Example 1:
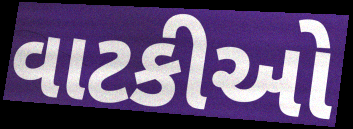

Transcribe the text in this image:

વાટકીઓ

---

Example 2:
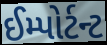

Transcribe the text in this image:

ઈમ્પોર્ટન્ટ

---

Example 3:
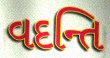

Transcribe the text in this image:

વદન્તિ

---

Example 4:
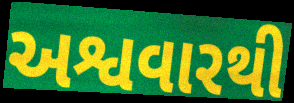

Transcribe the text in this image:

અશ્વવારથી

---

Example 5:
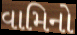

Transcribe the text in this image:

વામિનો